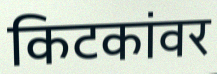
किटकांवर